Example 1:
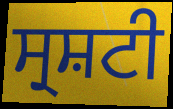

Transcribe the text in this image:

ਸ੍ਰਸ਼ਟੀ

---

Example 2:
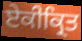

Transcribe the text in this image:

ਏਕੀਕ੍ਰਿਤ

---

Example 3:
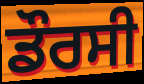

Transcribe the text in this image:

ਡੌਰਸੀ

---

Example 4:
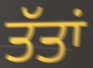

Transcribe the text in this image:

ਤੱਤਾਂ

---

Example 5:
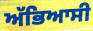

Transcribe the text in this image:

ਅੱਭਿਆਸੀ